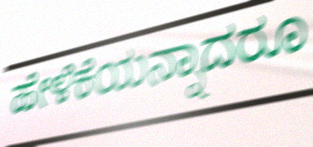
ಹೇಳಿಕೆಯನ್ನಾದರೂ